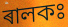
ৰালকঃ